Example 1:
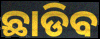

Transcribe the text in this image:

ଛାଡିବ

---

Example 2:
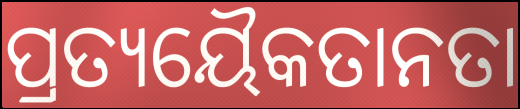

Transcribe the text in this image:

ପ୍ରତ୍ୟୟୈକତାନତା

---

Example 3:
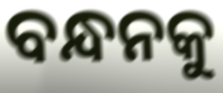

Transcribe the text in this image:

ବନ୍ଧନକୁ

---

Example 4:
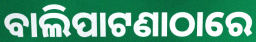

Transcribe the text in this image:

ବାଲିପାଟଣାଠାରେ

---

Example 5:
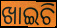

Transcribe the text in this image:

ଖାଇଚି